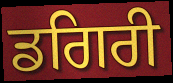
ਡਗਿਰੀ